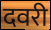
दवरी